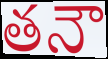
తనౌ